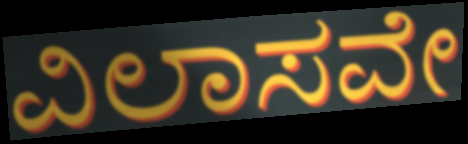
ವಿಲಾಸವೇ